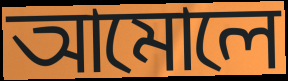
আমোলে